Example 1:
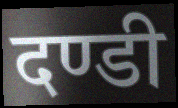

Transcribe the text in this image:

दण्डी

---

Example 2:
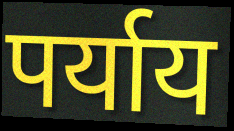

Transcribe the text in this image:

पर्याय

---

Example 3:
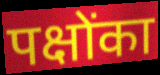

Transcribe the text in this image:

पक्षोंका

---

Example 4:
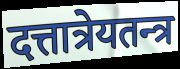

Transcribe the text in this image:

दत्तात्रेयतन्त्र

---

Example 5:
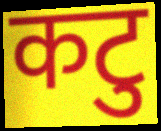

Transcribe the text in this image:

कटु